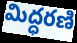
మిద్ధరణి